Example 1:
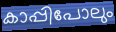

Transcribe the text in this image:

കാപ്പിപോലും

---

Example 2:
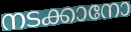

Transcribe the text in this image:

നടക്കാനോ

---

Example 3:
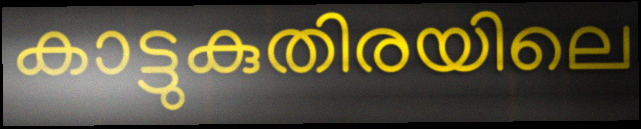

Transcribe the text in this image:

കാട്ടുകുതിരയിലെ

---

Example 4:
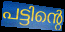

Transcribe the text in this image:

പട്ടിന്റെ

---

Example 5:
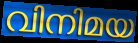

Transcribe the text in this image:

വിനിമയ